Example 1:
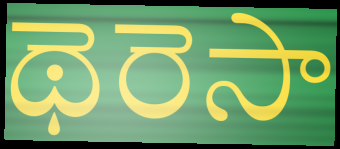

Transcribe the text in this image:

థెరెసా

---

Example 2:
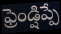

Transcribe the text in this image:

ఫ్రెండ్షిప్పే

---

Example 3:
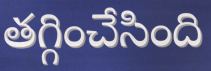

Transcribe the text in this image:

తగ్గించేసింది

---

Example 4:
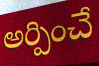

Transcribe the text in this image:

అర్పించే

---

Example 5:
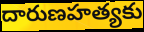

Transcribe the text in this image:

దారుణహత్యకు